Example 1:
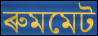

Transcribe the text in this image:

ৰুমমেট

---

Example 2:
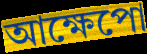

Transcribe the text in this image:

আক্ষেপো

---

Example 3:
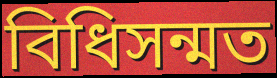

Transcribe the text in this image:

বিধিসন্মত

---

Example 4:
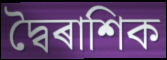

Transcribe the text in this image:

দ্বৈৰাশিক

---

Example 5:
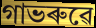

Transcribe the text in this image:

গাভৰুৱে